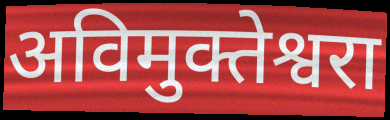
अविमुक्तेश्वरा